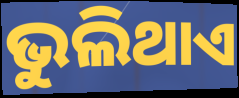
ଭୁଲିଥାଏ